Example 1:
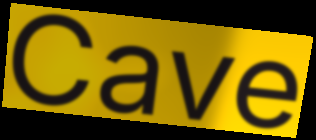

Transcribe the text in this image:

Cave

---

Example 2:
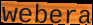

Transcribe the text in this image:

webera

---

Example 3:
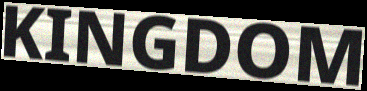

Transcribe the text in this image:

KINGDOM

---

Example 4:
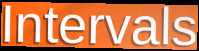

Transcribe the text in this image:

Intervals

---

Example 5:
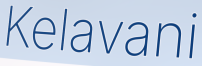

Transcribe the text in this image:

Kelavani